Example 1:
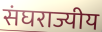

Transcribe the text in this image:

संघराज्यीय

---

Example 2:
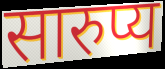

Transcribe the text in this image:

सारुप्य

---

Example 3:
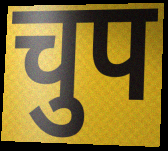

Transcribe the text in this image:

चुप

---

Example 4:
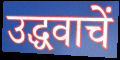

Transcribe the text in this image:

उद्धवाचें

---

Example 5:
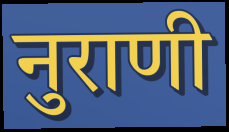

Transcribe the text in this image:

नुराणी